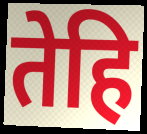
तेहि